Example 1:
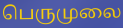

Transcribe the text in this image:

பெருமுலை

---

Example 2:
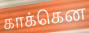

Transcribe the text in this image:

காக்கென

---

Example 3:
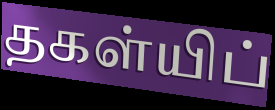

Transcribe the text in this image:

தகள்யிப்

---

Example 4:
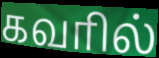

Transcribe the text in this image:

கவரில்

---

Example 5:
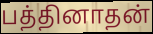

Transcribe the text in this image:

பத்தினாதன்